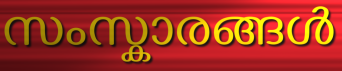
സംസ്കാരങ്ങൾ